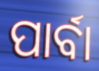
ପାର୍ବା